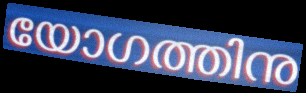
യോഗത്തിനു